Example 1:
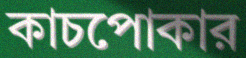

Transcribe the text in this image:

কাচপোকার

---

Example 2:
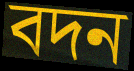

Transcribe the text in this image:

বদন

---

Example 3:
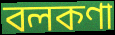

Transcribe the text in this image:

বলকণা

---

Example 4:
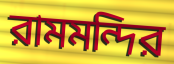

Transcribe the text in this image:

রামমন্দির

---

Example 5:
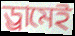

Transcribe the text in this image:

ড্রামেই